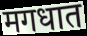
मगधात